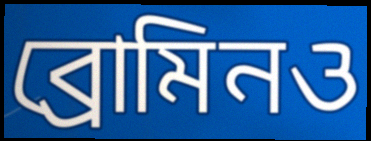
ব্রোমিনও